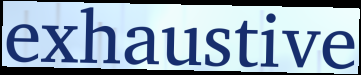
exhaustive